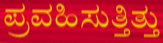
ಪ್ರವಹಿಸುತ್ತಿತ್ತು